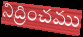
నిద్రించము